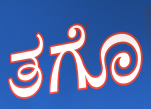
ತಗೊ